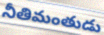
నీతిమంతుడు